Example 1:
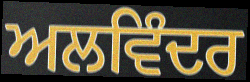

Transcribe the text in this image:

ਅਲਵਿੰਦਰ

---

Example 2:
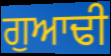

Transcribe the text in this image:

ਗੁਆਢੀ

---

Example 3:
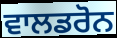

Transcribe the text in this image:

ਵਾਲਡਰੋਨ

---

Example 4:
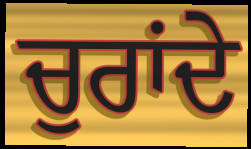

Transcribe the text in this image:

ਚੁਰਾਂਦੇ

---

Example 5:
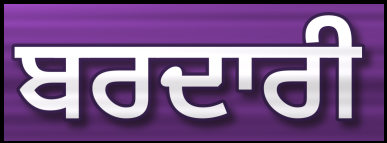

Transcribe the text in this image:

ਬਰਦਾਰੀ